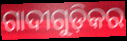
ଗାଦୀଗୁଡ଼ିକର